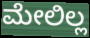
ಮೇಲಿಲ್ಲ